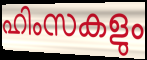
ഹിംസകളും